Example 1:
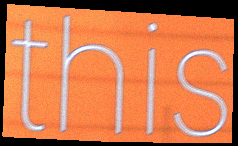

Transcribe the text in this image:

this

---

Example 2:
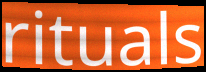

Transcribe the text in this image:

rituals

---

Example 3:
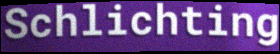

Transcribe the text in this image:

Schlichting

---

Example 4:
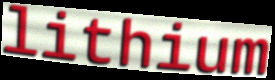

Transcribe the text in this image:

lithium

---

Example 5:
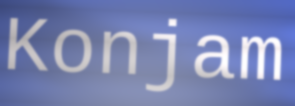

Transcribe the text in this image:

Konjam